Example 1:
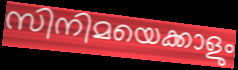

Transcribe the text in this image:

സിനിമയെക്കാളും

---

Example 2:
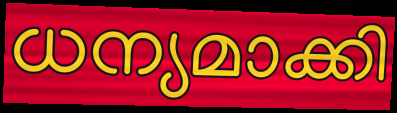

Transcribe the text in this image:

ധന്യമാക്കി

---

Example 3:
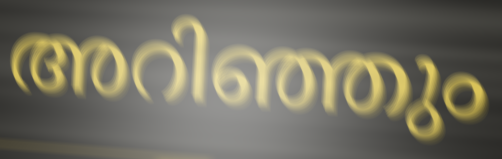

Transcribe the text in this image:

അറിഞ്ഞും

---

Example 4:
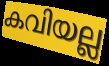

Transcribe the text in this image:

കവിയല്ല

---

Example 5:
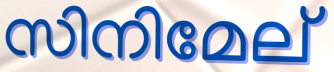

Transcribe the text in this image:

സിനിമേല്